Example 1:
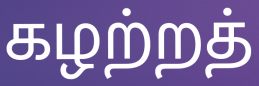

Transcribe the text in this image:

கழற்றத்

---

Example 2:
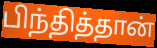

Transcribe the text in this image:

பிந்தித்தான்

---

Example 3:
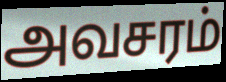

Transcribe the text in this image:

அவசரம்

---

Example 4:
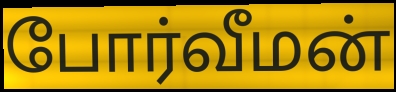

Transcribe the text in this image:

போர்வீமன்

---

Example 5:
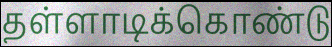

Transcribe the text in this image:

தள்ளாடிக்கொண்டு